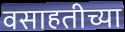
वसाहतीच्या